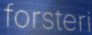
forsteri